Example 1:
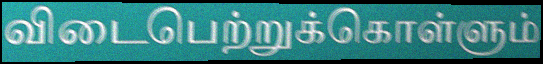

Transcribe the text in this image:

விடைபெற்றுக்கொள்ளும்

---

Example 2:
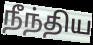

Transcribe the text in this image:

நீந்திய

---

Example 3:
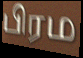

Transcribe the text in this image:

பிரம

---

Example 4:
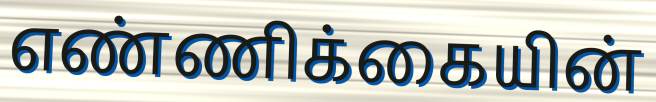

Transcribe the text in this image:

எண்ணிக்கையின்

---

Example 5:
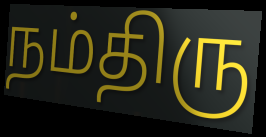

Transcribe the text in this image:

நம்திரு